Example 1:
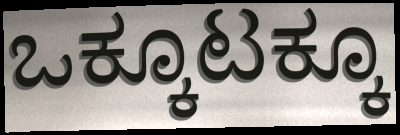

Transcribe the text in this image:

ಒಕ್ಕೂಟಕ್ಕೂ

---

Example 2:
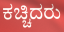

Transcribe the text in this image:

ಕಚ್ಚಿದರು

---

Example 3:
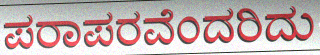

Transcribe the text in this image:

ಪರಾಪರವೆಂದರಿದು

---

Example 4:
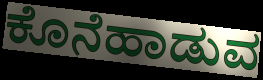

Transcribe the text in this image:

ಕೊನೆಹಾಡುವ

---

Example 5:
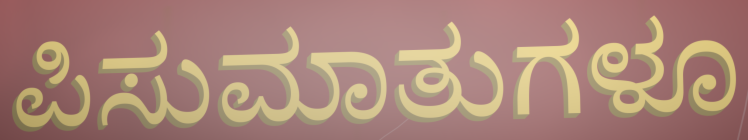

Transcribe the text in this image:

ಪಿಸುಮಾತುಗಳೂ